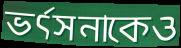
ভর্ৎসনাকেও